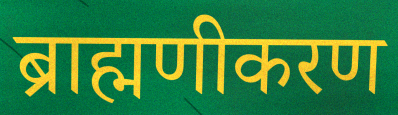
ब्राह्मणीकरण